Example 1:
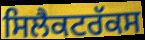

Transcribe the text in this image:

ਸਿਲੈਕਟਰੱਕਸ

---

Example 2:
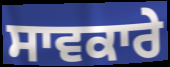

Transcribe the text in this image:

ਸਾਵਕਾਰੇ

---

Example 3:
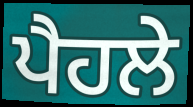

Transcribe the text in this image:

ਪੈਹਲੇ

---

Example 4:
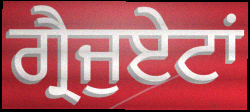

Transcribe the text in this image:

ਗ੍ਰੈਜੁਏਟਾਂ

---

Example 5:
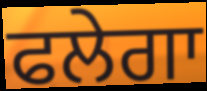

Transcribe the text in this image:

ਫਲੇਗਾ